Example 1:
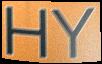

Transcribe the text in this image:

HY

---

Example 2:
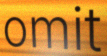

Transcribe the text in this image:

omit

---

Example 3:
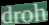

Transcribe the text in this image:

droh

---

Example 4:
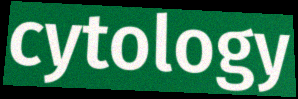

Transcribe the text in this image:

cytology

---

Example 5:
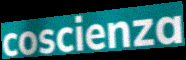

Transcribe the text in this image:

coscienza